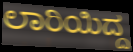
ಲಾರಿಯಿದ್ದ